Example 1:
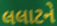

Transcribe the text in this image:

લલાટને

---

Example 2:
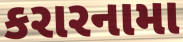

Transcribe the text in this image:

કરારનામા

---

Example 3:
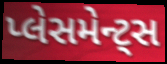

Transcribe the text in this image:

પ્લેસમેન્ટ્સ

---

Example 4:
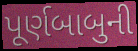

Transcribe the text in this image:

પૂર્ણબાબુની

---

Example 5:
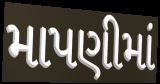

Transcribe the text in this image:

માપણીમાં